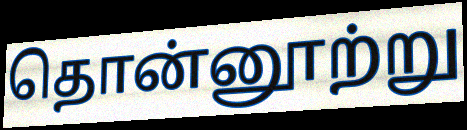
தொன்னூற்று